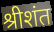
श्रीशंत